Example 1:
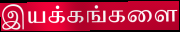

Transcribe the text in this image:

இயக்கங்களை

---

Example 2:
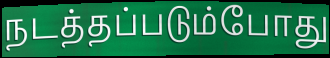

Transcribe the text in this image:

நடத்தப்படும்போது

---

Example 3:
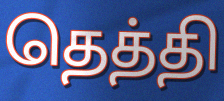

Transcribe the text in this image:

தெத்தி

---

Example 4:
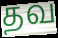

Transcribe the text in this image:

தவ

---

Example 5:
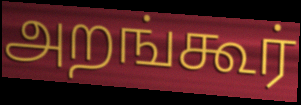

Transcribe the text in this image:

அறங்கூர்